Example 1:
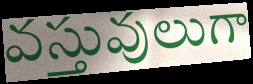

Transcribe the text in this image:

వస్తువులుగా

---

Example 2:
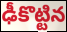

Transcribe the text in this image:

ఢీకొట్టిన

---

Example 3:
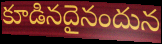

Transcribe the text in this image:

కూడినదైనందున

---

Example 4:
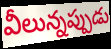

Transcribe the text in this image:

వీలున్నప్పుడు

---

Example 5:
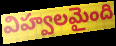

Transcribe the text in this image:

విహ్వలమైంది